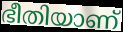
ഭീതിയാണ്